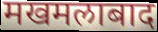
मखमलाबाद